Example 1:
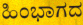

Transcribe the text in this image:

ಹಿಂಭಾಗದ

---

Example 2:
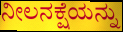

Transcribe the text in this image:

ನೀಲನಕ್ಷೆಯನ್ನು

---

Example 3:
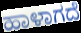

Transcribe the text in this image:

ಹಾಳಾಗದೆ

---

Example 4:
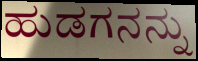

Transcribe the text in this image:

ಹುಡಗನನ್ನು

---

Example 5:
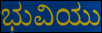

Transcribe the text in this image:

ಭುವಿಯು